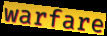
warfare